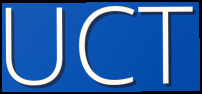
UCT